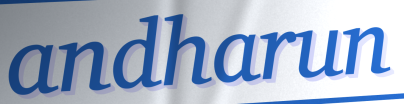
andharun